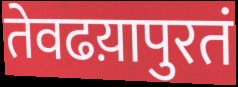
तेवढय़ापुरतं